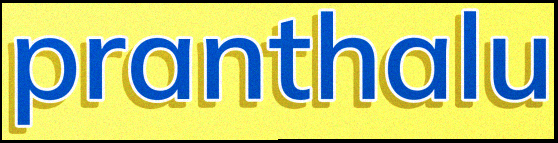
pranthalu